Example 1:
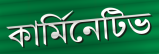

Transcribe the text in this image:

কার্মিনেটিভ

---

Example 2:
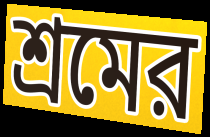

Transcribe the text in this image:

শ্রমের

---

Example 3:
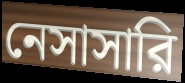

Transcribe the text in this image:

নেসাসারি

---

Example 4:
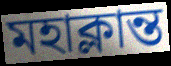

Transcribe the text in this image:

মহাক্লান্ত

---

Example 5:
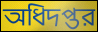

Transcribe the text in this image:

অধিদপ্তর